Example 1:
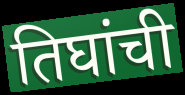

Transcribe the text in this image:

तिघांची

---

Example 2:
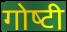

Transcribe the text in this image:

गोष्‍टी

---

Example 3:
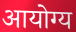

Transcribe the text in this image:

आयोग्य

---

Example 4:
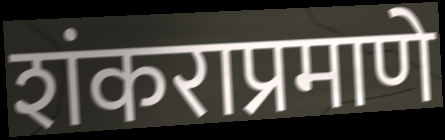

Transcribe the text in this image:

शंकराप्रमाणे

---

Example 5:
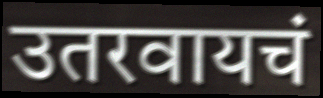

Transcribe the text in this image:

उतरवायचं